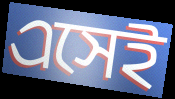
এসেই